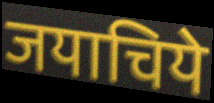
जयाचिये